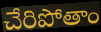
చేరిపోతాం